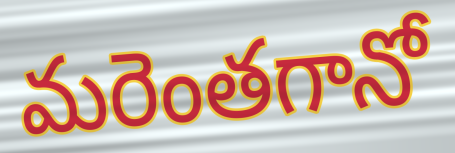
మరెంతగానో